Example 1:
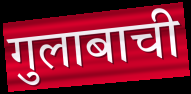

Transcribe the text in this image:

गुलाबाची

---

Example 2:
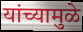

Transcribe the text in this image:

यांच्यामुळे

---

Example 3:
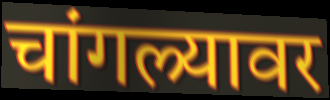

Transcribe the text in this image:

चांगल्यावर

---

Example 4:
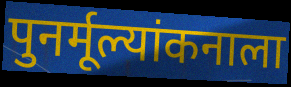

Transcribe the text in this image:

पुनर्मूल्यांकनाला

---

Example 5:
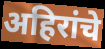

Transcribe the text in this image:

अहिरांचे